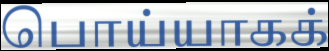
பொய்யாகக்